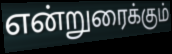
என்றுரைக்கும்